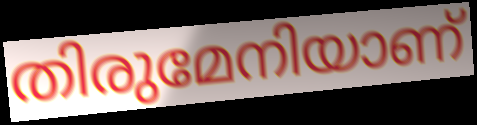
തിരുമേനിയാണ്